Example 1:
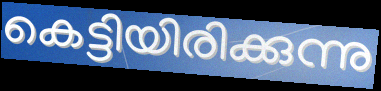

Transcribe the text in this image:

കെട്ടിയിരിക്കുന്നു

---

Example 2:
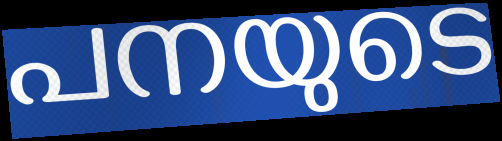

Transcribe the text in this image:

പനയുടെ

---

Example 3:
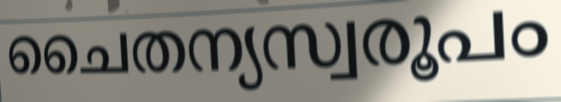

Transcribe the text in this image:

ചൈതന്യസ്വരൂപം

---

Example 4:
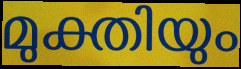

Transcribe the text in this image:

മുക്തിയും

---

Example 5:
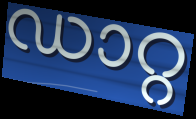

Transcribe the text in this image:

ഡാറ്റ